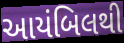
આયંબિલથી